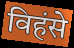
विहंसे